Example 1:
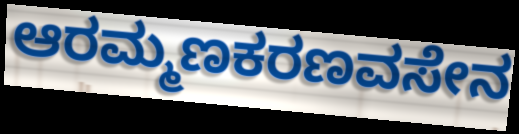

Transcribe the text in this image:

ಆರಮ್ಮಣಕರಣವಸೇನ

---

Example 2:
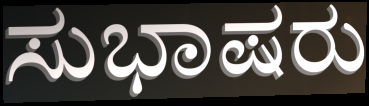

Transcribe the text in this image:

ಸುಭಾಷರು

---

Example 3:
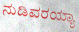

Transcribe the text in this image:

ನುಡಿವರಯ್ಯಾ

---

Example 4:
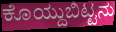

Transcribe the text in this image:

ಕೊಯ್ದುಬಿಟ್ಟನು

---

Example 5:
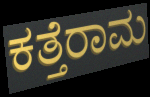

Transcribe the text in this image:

ಕತ್ತೆರಾಮ